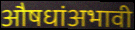
औषधांअभावी